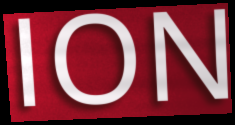
ION